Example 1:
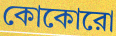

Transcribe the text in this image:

কোকোরো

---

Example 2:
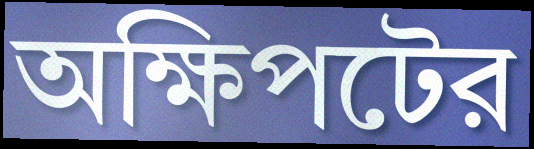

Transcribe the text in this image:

অক্ষিপটের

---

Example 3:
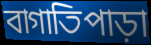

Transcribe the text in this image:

বাগাতিপাড়া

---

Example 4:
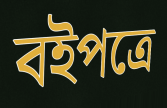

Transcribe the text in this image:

বইপত্রে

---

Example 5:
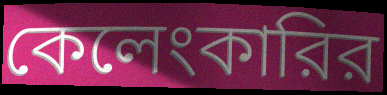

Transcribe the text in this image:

কেলেংকারির